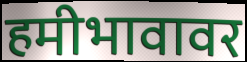
हमीभावावर